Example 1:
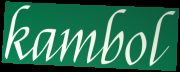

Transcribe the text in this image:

kambol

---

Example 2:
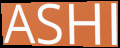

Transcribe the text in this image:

ASHI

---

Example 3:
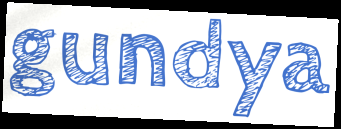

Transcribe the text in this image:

gundya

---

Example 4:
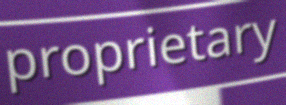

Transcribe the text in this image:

proprietary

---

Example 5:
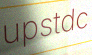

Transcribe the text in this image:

upstdc